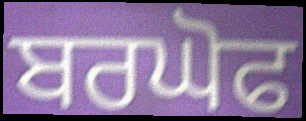
ਬਰਘੋਫ